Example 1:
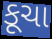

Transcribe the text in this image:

કૂચા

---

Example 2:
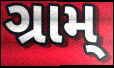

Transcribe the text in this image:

ગ્રામ્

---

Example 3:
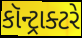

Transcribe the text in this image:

કૉન્ટ્રાક્ટરે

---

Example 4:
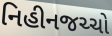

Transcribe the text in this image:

નિહીનજચ્ચો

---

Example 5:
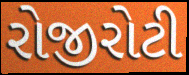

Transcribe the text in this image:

રોજીરોટી